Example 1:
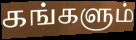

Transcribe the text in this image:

கங்களும்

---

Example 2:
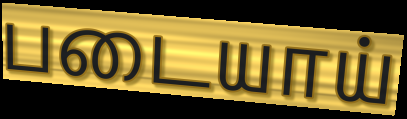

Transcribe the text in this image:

படையாய்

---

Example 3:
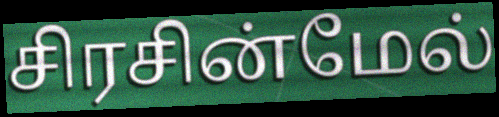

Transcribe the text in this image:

சிரசின்மேல்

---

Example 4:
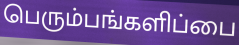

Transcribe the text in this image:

பெரும்பங்களிப்பை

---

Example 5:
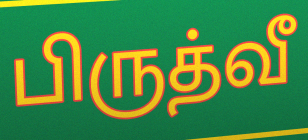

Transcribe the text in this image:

பிருத்வீ